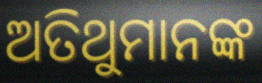
ଅତିଥୁମାନଙ୍କ